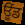
ਊਂਡ